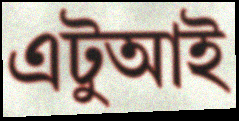
এটুআই